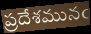
ప్రదేశమునఁ